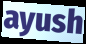
ayush